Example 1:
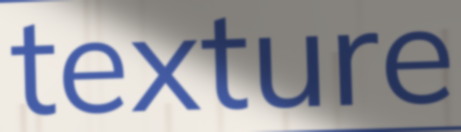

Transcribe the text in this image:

texture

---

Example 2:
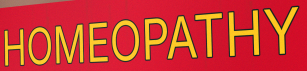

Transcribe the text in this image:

HOMEOPATHY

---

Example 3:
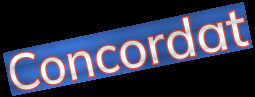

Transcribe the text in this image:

Concordat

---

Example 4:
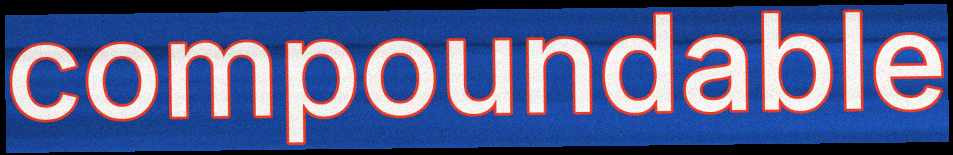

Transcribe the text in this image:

compoundable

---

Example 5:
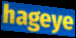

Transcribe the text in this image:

hageye